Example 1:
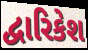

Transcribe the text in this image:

દ્વારિકેશ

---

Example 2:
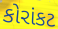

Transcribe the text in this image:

કોરાંકટ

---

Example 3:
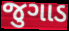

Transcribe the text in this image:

જુગાડ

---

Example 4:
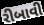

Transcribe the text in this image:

રીબાવી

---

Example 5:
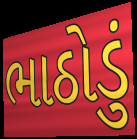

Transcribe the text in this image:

ભાઠોડું